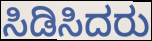
ಸಿಡಿಸಿದರು